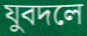
যুবদলে